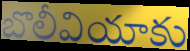
బొలీవియాకు